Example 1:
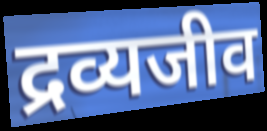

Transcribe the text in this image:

द्रव्यजीव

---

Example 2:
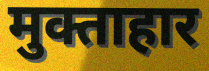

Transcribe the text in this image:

मुक्ताहार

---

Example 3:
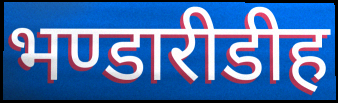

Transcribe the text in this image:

भण्डारीडीह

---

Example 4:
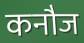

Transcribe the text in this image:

कनौज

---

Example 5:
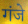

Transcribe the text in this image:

गंजे